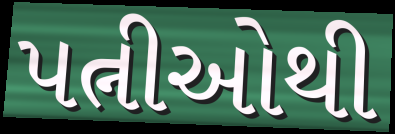
પત્નીઓથી